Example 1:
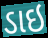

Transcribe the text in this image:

ડાઇ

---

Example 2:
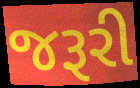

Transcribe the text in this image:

જરૂરી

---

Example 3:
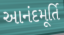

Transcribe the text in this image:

આનંદમૂર્તિ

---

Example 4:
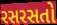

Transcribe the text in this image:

રસરસતો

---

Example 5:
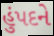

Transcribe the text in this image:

હુંપદને